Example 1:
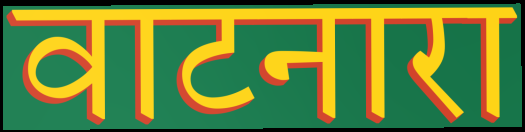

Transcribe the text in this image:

वाटनारा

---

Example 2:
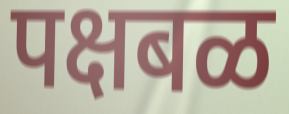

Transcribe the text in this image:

पक्षबळ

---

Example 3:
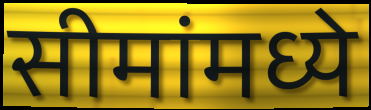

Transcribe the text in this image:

सीमांमध्ये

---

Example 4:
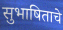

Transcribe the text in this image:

सुभाषिताचे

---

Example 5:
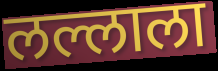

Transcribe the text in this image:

लल्लाला